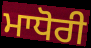
ਮਾਧੋਰੀ